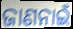
ଜାଣନାଇଁ